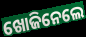
ଖୋଜିନେଲେ